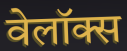
वेलॉक्स